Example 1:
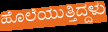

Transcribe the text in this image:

ಹೊಲೆಯುತ್ತಿದ್ದಳು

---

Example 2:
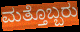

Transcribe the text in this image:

ಮತ್ತೊಬ್ಬರು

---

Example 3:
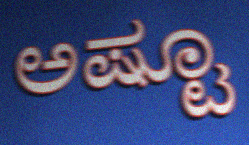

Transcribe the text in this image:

ಅಷ್ಟೂ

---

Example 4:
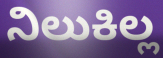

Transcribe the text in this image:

ನಿಲುಕಿಲ್ಲ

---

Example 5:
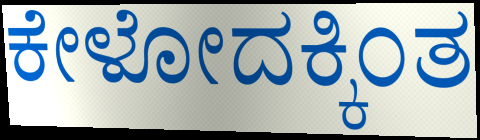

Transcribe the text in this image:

ಕೇಳೋದಕ್ಕಿಂತ